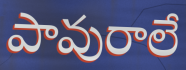
పావురాలే